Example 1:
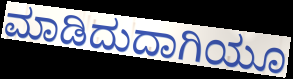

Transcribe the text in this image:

ಮಾಡಿದುದಾಗಿಯೂ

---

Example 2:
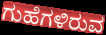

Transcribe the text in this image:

ಗುಹೆಗಳಿರುವ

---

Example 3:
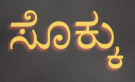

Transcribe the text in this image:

ಸೊಕ್ಕು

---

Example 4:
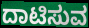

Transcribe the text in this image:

ದಾಟಿಸುವ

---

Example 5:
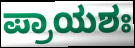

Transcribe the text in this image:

ಪ್ರಾಯಶಃ